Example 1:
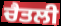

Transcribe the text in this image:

ਚੈਤਲੀ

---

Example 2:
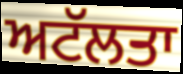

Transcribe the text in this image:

ਅਟੱਲਤਾ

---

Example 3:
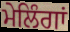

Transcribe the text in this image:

ਮੇਲਿੰਗਾਂ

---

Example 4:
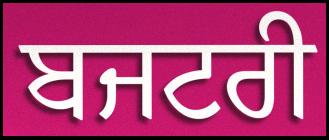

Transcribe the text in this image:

ਬਜਟਰੀ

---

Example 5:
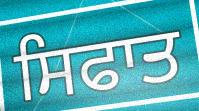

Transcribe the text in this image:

ਸਿਫਾਤ